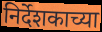
निर्देशकाच्या